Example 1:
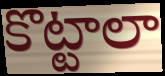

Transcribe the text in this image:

కొట్టాలా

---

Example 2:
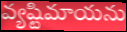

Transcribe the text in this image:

వ్యష్టిమాయను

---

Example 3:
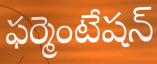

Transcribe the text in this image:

ఫర్మెంటేషన్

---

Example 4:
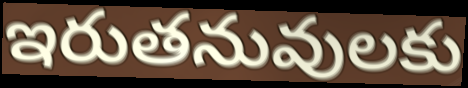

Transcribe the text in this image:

ఇరుతనువులకు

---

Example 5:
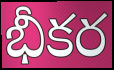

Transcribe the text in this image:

భీకర